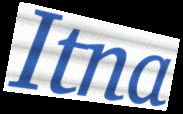
Itna